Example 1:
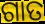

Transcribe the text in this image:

ଗାତ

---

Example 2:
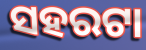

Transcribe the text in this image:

ସହରଟା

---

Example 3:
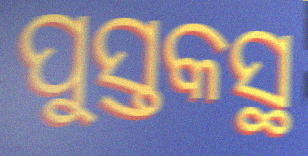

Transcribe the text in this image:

ପୁସ୍ତକସ୍ଥ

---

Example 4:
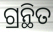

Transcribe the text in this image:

ଗ୍ରନ୍ଥିତ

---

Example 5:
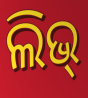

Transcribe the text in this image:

ଲିଭ୍